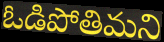
ఓడిపోతిమని